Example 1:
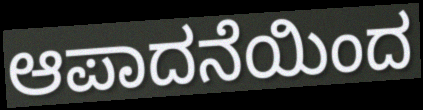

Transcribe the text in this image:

ಆಪಾದನೆಯಿಂದ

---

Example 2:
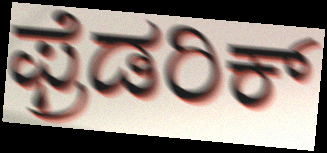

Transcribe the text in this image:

ಫ್ರೆಡರಿಕ್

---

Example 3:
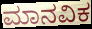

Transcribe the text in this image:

ಮಾನವಿಕ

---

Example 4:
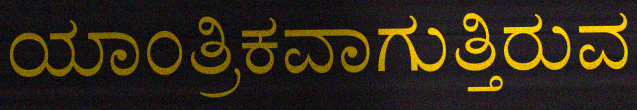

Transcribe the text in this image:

ಯಾಂತ್ರಿಕವಾಗುತ್ತಿರುವ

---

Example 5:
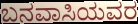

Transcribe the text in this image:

ಬನವಾಸಿಯವರ